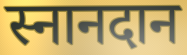
स्नानदान